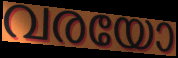
വരയോ